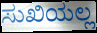
ಸುಖಿಯಲ್ಲ